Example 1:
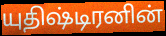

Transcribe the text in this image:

யுதிஷ்டிரனின்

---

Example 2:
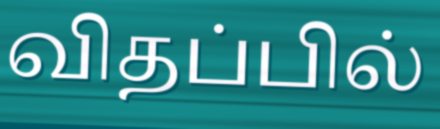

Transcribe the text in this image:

விதப்பில்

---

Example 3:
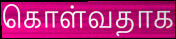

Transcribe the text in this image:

கொள்வதாக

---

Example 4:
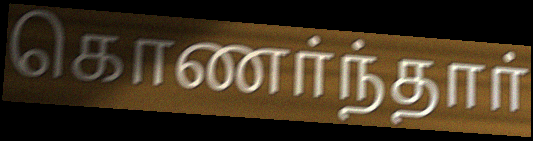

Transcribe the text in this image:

கொணர்ந்தார்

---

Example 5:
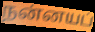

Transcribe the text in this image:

நன்னயப்